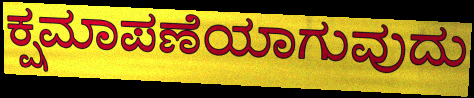
ಕ್ಷಮಾಪಣೆಯಾಗುವುದು